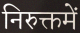
निरुक्तमें